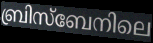
ബ്രിസ്ബേനിലെ